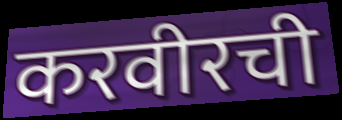
करवीरची